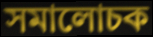
সমালোচক